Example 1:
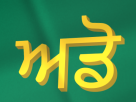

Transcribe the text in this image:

ਅਡੋ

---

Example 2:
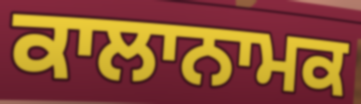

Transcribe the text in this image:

ਕਾਲਾਨਾਮਕ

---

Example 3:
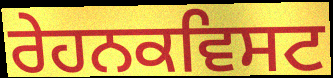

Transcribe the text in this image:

ਰੇਹਨਕਵਿਸਟ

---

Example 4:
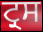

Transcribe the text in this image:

ਟ੍ਰਸ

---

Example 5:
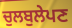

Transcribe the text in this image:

ਚੁਲਬੁਲੇਪਣ